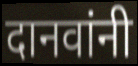
दानवांनी